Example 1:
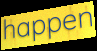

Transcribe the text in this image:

happen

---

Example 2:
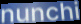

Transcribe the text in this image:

nunchi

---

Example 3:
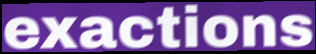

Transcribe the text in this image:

exactions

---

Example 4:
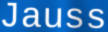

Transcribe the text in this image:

Jauss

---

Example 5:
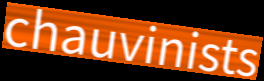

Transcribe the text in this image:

chauvinists